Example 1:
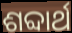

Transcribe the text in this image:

ଶବ୍ଦାର୍ଥ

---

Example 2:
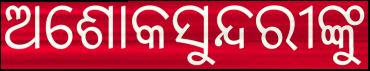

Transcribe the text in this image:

ଅଶୋକସୁନ୍ଦରୀଙ୍କୁ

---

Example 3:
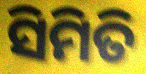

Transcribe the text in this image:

ସିମିତି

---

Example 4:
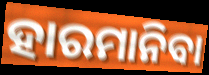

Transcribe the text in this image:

ହାରମାନିବା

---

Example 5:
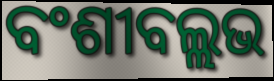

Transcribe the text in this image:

ବଂଶୀବଲ୍ଲଭ